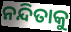
ନନ୍ଦିତାକୁ